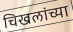
चिखलांच्या